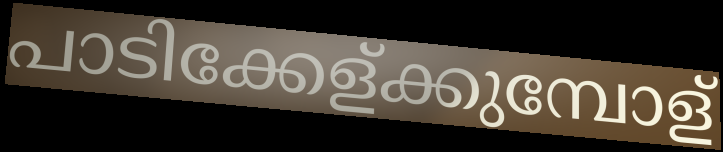
പാടിക്കേള്ക്കുമ്പോള്